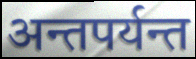
अन्तपर्यन्त